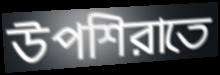
উপশিরাতে